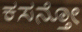
ಕಸನ್ತೋ